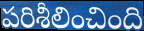
పరిశీలించింది